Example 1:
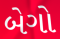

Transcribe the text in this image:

બેગો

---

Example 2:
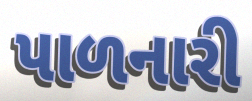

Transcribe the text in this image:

પાળનારી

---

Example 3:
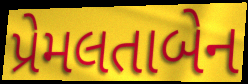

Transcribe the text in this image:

પ્રેમલતાબેન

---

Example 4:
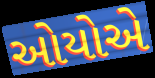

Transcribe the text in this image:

ઓયોએ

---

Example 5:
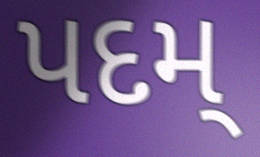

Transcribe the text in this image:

પદમ્